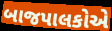
બાજપાલકોએ